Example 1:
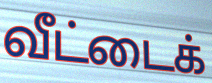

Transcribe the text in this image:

வீட்டைக்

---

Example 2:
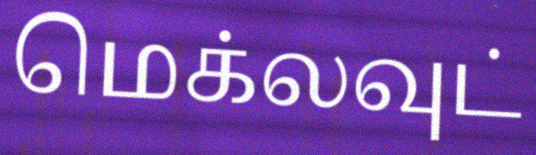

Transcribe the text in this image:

மெக்லவுட்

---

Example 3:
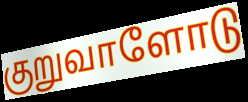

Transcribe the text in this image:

குறுவாளோடு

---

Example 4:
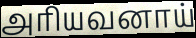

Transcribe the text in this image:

அரியவனாய்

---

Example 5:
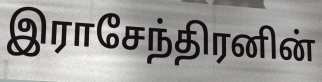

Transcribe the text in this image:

இராசேந்திரனின்